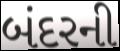
બંદરની